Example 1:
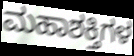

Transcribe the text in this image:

ಮಹಾಶಕ್ತಿಗಳ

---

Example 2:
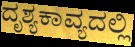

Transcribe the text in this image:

ದೃಶ್ಯಕಾವ್ಯದಲ್ಲಿ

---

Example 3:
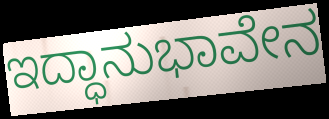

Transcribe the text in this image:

ಇದ್ಧಾನುಭಾವೇನ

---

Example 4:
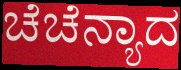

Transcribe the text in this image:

ಚೆಚೆನ್ಯಾದ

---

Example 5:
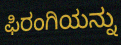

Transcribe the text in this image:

ಫಿರಂಗಿಯನ್ನು